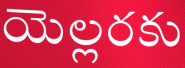
యెల్లరకు